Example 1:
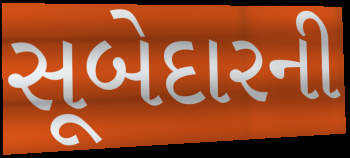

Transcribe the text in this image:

સૂબેદારની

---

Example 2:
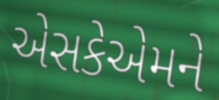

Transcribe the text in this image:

એસકેએમને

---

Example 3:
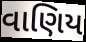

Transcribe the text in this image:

વાણિય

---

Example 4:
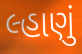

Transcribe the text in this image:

લ્હાણું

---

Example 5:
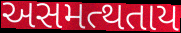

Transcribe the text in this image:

અસમત્થતાય